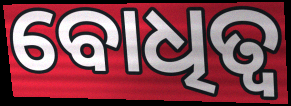
ବୋଧିତ୍ୱ